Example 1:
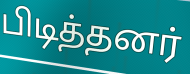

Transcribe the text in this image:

பிடித்தனர்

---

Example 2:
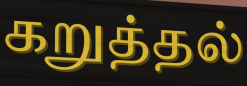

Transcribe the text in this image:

கறுத்தல்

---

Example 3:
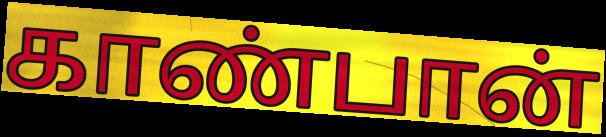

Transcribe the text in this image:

காண்பான்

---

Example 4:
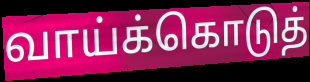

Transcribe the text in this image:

வாய்க்கொடுத்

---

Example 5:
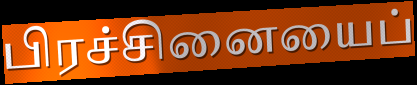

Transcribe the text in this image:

பிரச்சினையைப்